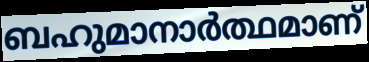
ബഹുമാനാർത്ഥമാണ്